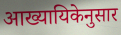
आख्यायिकेनुसार